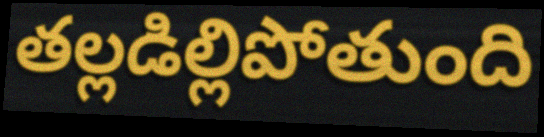
తల్లడిల్లిపోతుంది